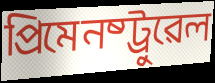
প্ৰিমেনষ্ট্ৰুৱেল